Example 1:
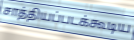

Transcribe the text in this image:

சாத்தியப்படக்கூடிய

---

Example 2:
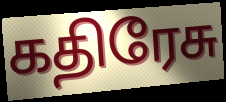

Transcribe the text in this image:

கதிரேசு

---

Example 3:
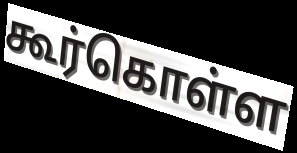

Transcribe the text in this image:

கூர்கொள்ள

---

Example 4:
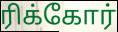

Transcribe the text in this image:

ரிக்கோர்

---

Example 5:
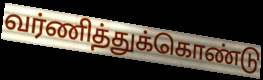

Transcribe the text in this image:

வர்ணித்துக்கொண்டு